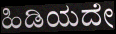
ಹಿಡಿಯದೇ